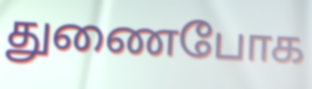
துணைபோக